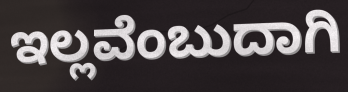
ಇಲ್ಲವೆಂಬುದಾಗಿ